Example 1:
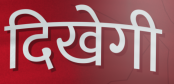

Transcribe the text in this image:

दिखेगी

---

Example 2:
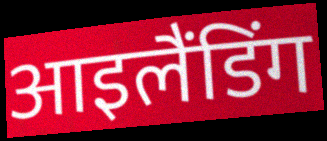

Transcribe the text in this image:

आइलैंडिंग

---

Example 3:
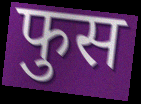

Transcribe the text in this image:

फुस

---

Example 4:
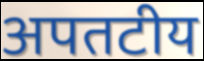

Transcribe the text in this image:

अपतटीय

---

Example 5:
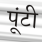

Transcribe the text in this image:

पूंटी